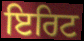
ਇਰਿਟ